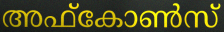
അഫ്കോൺസ്